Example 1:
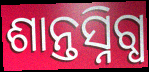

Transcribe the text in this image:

ଶାନ୍ତସ୍ନିଗ୍ଧ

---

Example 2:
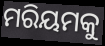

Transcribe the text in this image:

ମରିୟମକୁ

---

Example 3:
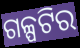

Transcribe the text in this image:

ଗଳ୍ପଟିର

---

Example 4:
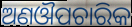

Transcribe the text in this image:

ଅଣଔପଚାରିକ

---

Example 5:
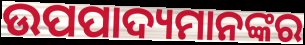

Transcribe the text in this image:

ଉପପାଦ୍ୟମାନଙ୍କର